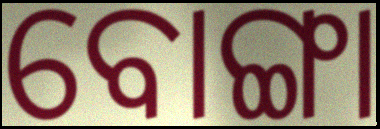
ବୋଙ୍ଗା